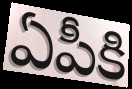
ఏపీకి